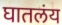
घातलंय